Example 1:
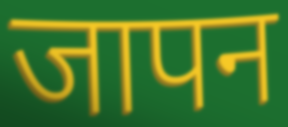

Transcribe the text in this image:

जापन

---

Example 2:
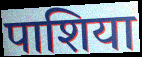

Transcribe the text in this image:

पाशिया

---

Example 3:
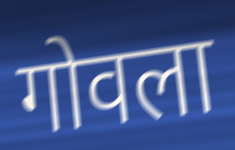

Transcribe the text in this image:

गोवला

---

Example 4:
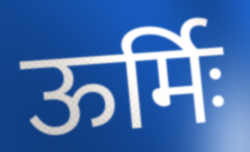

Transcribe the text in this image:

ऊर्मिः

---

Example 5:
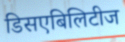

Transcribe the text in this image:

डिसएबिलिटीज